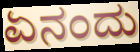
ಏನಂದು